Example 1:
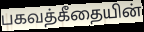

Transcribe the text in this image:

பகவத்கீதையின்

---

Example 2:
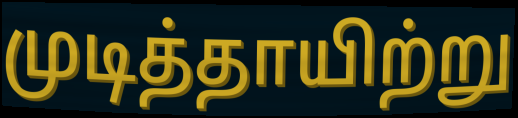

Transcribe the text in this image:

முடித்தாயிற்று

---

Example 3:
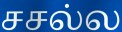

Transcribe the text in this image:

சசல்ல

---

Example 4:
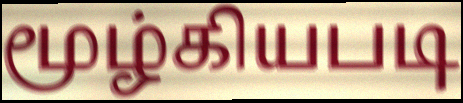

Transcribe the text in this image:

மூழ்கியபடி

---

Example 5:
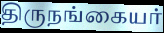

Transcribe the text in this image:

திருநங்கையர்